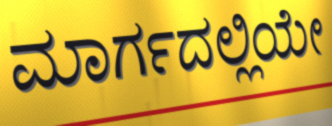
ಮಾರ್ಗದಲ್ಲಿಯೇ